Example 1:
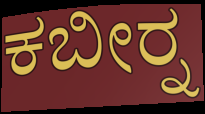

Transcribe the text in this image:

ಕಬೀರ್‍ನ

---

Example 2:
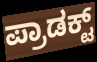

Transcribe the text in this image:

ಪ್ರಾಡಕ್ಟ್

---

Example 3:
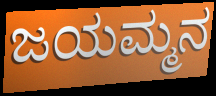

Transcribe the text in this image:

ಜಯಮ್ಮನ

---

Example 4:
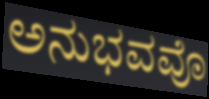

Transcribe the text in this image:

ಅನುಭವವೊ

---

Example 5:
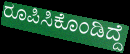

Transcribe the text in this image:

ರೂಪಿಸಿಕೊಂಡಿದ್ದೆ